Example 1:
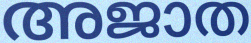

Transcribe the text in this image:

അജാത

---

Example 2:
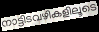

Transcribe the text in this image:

നാട്ടിടവഴികളിലൂടെ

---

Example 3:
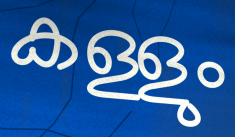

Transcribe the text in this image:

കള്ളും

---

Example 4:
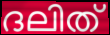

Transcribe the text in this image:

ദലിത്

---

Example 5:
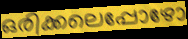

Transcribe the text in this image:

ഒരിക്കലെപ്പോഴോ